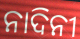
ନାଦିନୀ